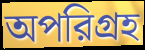
অপরিগ্রহ